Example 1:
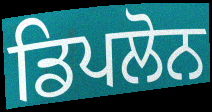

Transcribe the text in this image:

ਡਿਪਲੋਨ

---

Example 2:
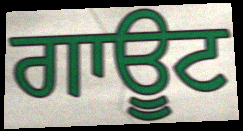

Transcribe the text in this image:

ਗਾਊਟ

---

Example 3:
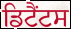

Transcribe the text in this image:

ਡਿਟੈਂਟਸ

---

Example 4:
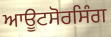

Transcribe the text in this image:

ਆਊਟਸੋਰਸਿੰਗ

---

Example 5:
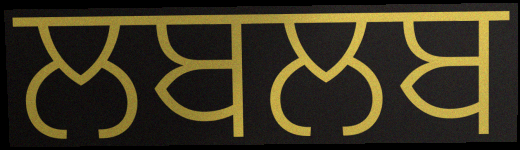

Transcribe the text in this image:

ਲਬਲਬ